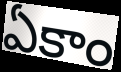
ఏకాం